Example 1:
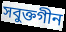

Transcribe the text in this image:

সবুক্তগীন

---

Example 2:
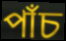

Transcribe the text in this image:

পাঁচ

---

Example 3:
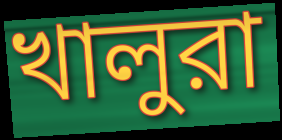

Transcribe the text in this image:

খালুরা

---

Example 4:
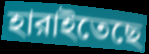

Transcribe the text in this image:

হারাইতেছে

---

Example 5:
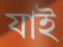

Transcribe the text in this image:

যাই